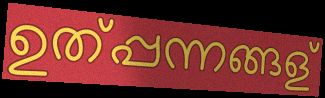
ഉത്പ്പന്നങ്ങള്